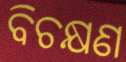
ବିଚକ୍ଷଣ